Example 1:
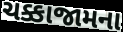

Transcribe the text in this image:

ચક્કાજામના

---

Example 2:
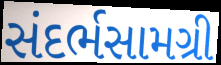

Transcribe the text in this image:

સંદર્ભસામગ્રી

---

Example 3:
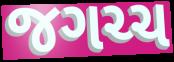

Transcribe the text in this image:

જગચ્ચ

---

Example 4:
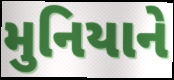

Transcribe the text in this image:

મુનિયાને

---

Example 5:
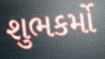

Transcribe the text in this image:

શુભકર્મો